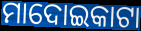
ମାଦୋଇକାଟା